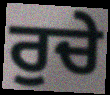
ਰੁਚੇ